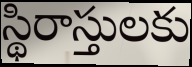
స్థిరాస్తులకు